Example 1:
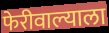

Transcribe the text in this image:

फेरीवाल्याला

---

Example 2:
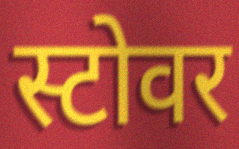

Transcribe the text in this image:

स्टोवर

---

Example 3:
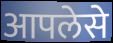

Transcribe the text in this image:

आपलेसे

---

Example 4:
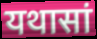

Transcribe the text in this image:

यथासां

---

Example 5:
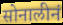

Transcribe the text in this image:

सोनालीनं